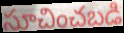
సూచించబడి